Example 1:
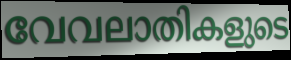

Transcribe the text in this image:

വേവലാതികളുടെ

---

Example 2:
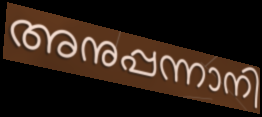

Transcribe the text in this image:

അനുപ്പന്നാനി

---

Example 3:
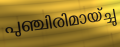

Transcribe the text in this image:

പുഞ്ചിരിമായ്ച്ചു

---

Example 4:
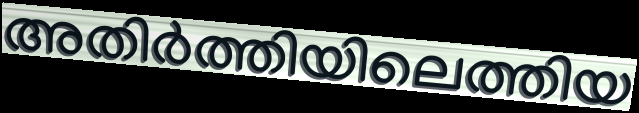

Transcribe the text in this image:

അതിർത്തിയിലെത്തിയ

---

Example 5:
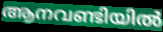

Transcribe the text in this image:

ആനവണ്ടിയിൽ